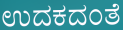
ಉದಕದಂತೆ